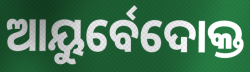
ଆୟୁର୍ବେଦୋକ୍ତ